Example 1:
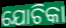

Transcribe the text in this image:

ଯୋଚିକା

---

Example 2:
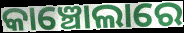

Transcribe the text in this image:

କାଞ୍ଚୋଲାରେ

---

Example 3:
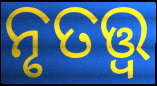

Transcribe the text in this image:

ନୃତତ୍ତ୍ଵ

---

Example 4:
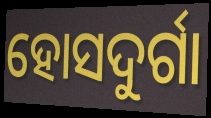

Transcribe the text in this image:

ହୋସଦୁର୍ଗା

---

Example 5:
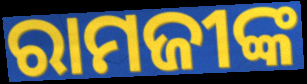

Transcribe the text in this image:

ରାମଜୀଙ୍କ